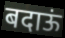
बदाऊं